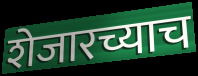
शेजारच्याच